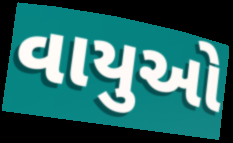
વાયુઓ